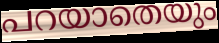
പറയാതെയും